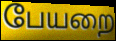
பேயறை